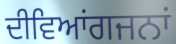
ਦੀਵਿਆਂਗਜਨਾਂ